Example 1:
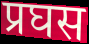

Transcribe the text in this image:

प्रघस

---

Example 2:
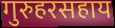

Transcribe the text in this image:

गुरुहरसहाय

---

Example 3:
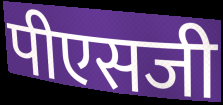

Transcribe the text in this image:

पीएसजी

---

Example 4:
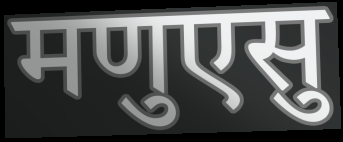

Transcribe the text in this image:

मणुएसु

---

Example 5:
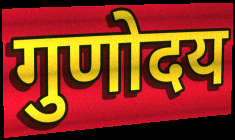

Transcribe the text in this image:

गुणोदय